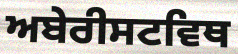
ਅਬੇਰੀਸਟਵਿਥ